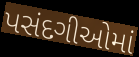
પસંદગીઓમાં